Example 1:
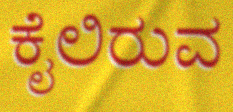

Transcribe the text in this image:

ಕೈಲಿರುವ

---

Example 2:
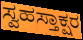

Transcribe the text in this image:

ಸ್ವಹಸ್ತಾಕ್ಷರ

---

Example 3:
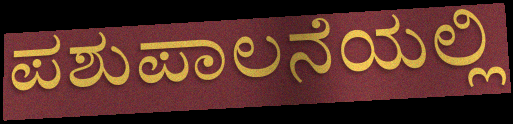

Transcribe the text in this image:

ಪಶುಪಾಲನೆಯಲ್ಲಿ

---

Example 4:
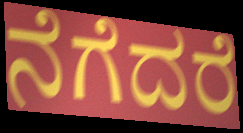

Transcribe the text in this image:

ನೆಗೆದರೆ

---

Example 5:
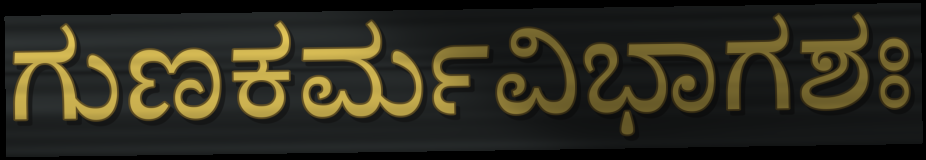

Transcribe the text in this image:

ಗುಣಕರ್ಮವಿಭಾಗಶಃ